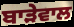
ਬਾੜੇਵਾਲ